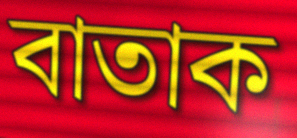
বাতাক